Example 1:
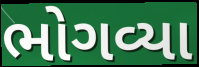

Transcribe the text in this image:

ભોગવ્યા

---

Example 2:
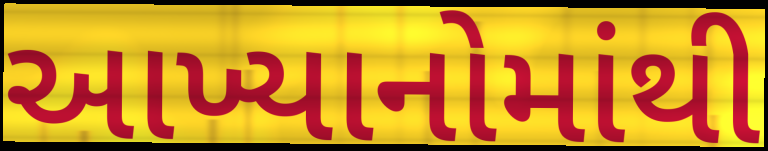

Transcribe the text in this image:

આખ્યાનોમાંથી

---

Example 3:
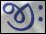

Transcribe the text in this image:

જીઃ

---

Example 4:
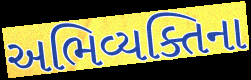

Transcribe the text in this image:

અભિવ્યક્તિના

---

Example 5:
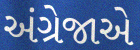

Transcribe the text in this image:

અંગ્રેજાએ